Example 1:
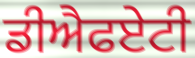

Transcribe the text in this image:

ਡੀਐਫਏਟੀ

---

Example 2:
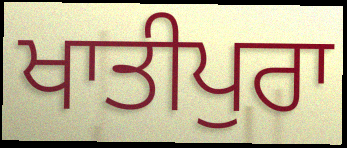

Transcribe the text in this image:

ਖਾਤੀਪੁਰਾ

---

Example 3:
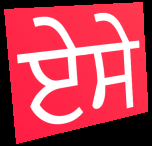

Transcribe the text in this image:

ਏਸੇ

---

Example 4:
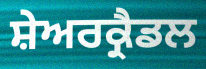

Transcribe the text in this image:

ਸ਼ੇਅਰਕ੍ਰੈਡਲ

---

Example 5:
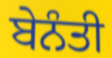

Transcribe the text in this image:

ਬੇਨੰਤੀ